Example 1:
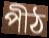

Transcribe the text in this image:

পীঠ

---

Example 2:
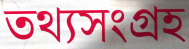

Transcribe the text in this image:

তথ্যসংগ্ৰহ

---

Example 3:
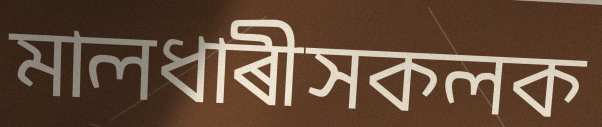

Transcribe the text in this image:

মালধাৰীসকলক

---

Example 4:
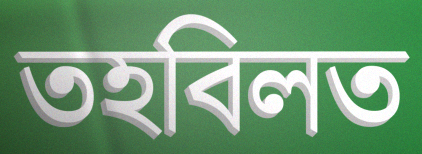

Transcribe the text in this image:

তহবিলত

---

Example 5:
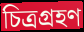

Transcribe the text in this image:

চিত্ৰগ্ৰহণ